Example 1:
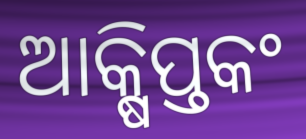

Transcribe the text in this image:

ଆକ୍ଷିପ୍ତକଂ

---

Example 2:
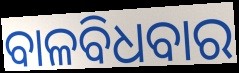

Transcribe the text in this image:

ବାଳବିଧବାର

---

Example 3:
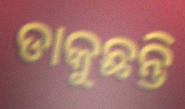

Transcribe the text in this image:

ଡାକୁଛନ୍ତି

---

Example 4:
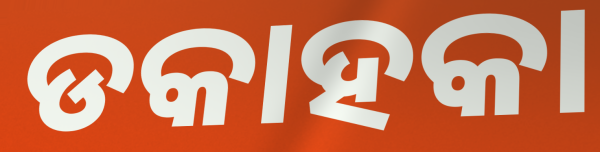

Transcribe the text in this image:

ଡକାହକା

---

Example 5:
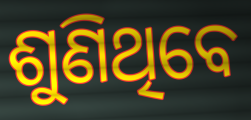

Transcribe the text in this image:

ଶୁଣିଥିବେ